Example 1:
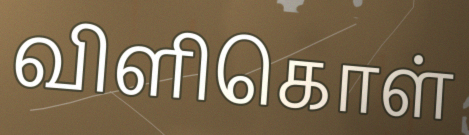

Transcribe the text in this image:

விளிகொள்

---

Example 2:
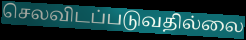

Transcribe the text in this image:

செலவிடப்படுவதில்லை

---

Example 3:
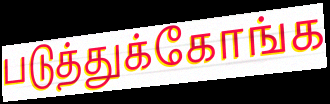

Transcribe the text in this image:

படுத்துக்கோங்க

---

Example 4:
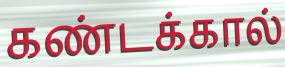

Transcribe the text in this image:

கண்டக்கால்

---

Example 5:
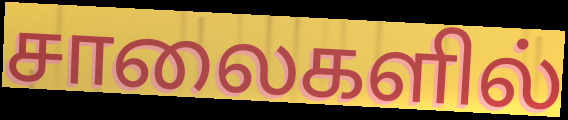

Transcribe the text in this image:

சாலைகளில்